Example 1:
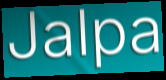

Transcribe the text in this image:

Jalpa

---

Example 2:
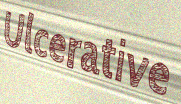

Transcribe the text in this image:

Ulcerative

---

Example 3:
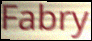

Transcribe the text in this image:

Fabry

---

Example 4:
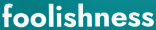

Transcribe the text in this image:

foolishness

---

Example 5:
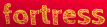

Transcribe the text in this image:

fortress